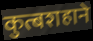
कुत्बशहाने